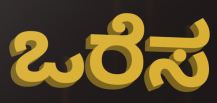
ಒರೆಸ